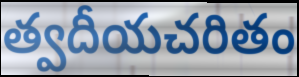
త్వదీయచరితం